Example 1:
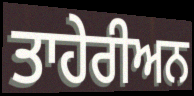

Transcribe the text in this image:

ਤਾਹੇਰੀਅਨ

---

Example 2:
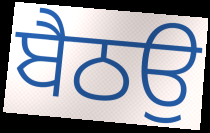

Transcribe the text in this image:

ਬੈਠਉ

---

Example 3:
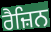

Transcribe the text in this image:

ਰੈਜ਼ਿਨ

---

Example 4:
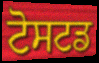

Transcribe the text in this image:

ਟੋਸਟਡ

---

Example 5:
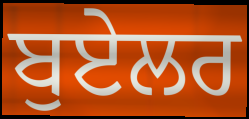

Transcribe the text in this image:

ਬੁਏਲਰ